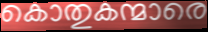
കൊതുകന്മാരെ